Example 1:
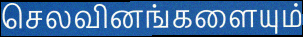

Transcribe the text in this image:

செலவினங்களையும்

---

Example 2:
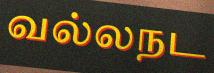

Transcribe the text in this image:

வல்லநட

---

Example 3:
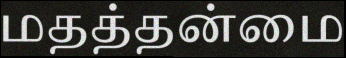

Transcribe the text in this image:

மதத்தன்மை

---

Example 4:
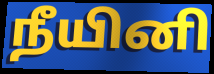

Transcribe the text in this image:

நீயினி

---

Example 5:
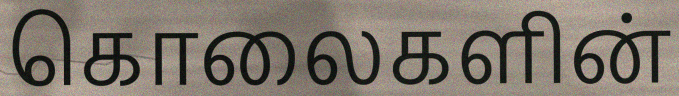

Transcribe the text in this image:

கொலைகளின்